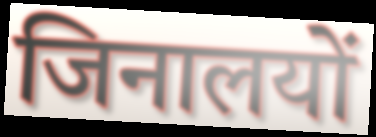
जिनालयों